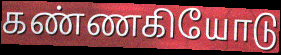
கண்ணகியோடு